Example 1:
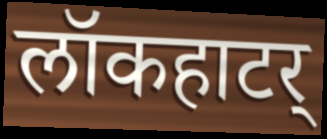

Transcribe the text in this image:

लॉकहाटर्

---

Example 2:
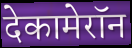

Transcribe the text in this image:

देकामेरॉन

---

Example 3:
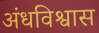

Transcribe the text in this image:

अंधविश्वास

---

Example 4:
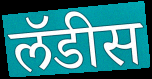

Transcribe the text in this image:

लॅडीस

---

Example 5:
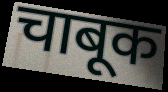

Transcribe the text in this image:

चाबूक